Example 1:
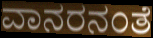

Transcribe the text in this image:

ವಾನರನಂತೆ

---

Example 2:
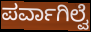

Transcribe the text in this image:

ಪರ್ವಾಗಿಲ್ವೆ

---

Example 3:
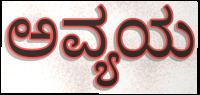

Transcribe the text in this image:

ಅವ್ಯಯ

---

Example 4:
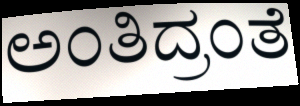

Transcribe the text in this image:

ಅಂತಿದ್ರಂತೆ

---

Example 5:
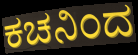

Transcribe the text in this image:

ಕಚನಿಂದ